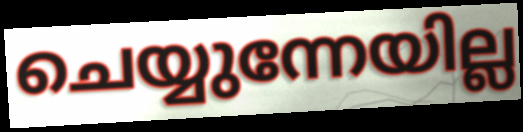
ചെയ്യുന്നേയില്ല